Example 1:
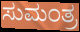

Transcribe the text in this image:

ಸುಮಂತ್ರ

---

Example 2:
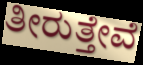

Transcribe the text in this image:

ತೀರುತ್ತೇವೆ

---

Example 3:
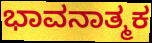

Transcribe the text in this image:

ಭಾವನಾತ್ಮಕ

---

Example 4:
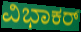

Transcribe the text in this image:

ವಿಭಾಕರ್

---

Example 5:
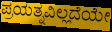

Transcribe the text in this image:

ಪ್ರಯತ್ನವಿಲ್ಲದೆಯೇ